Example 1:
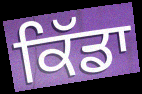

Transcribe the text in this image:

ਕਿੱਡਾ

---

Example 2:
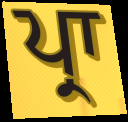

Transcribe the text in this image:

ਪ੍ਰਾ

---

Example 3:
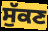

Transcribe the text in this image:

ਸੁੱਕਣ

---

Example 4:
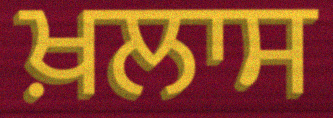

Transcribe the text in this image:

ਖ਼ਲਾਸ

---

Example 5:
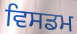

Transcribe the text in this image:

ਵਿਸਡਮ